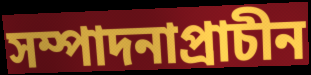
সম্পাদনাপ্রাচীন